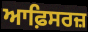
ਆਫ਼ਿਸਰਜ਼